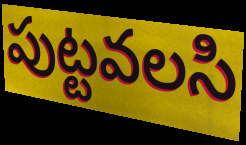
పుట్టవలసి